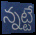
న్నట్టే